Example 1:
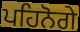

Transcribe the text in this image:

ਪਹਿਨੋਗੇ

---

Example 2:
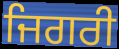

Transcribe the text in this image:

ਜਿਗਰੀ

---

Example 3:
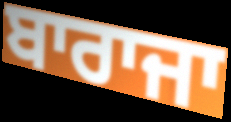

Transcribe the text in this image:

ਬਾਰਾਜਾ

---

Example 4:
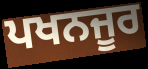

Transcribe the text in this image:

ਪਖਨਜੂਰ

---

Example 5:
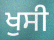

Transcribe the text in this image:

ਖੁਸੀ